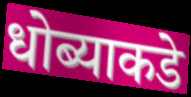
धोब्याकडे